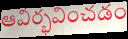
ఆవిర్భవించడం